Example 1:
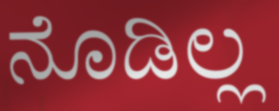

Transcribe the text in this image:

ನೊಡಿಲ್ಲ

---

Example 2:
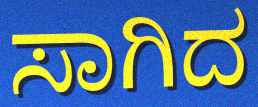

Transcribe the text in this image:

ಸಾಗಿದ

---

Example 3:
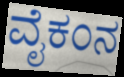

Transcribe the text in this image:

ವೈಕಂನ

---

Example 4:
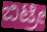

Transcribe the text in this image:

ಬಿಟ್ರೇ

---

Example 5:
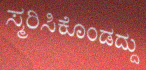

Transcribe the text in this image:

ಸ್ಮರಿಸಿಕೊಂಡದ್ದು